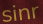
sinr